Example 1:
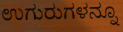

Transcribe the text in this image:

ಉಗುರುಗಳನ್ನೂ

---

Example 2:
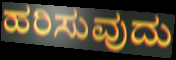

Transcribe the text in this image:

ಹರಿಸುವುದು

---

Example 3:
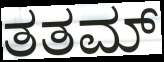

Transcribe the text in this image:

ತತಮ್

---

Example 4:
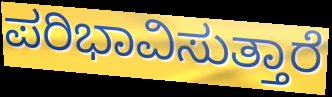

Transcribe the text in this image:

ಪರಿಭಾವಿಸುತ್ತಾರೆ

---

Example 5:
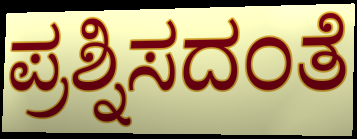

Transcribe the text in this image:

ಪ್ರಶ್ನಿಸದಂತೆ